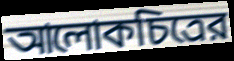
আলোকচিত্রের